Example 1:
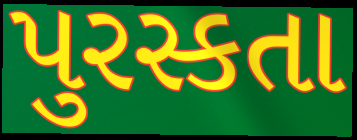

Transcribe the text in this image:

પુરસ્કતા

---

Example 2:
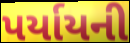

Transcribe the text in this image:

પર્યાયની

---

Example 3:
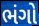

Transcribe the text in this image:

ભંગો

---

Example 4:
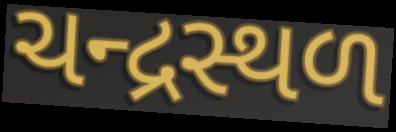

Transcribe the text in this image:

ચન્દ્રસ્થળ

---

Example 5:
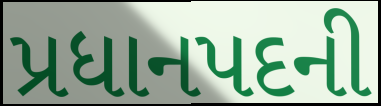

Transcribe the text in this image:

પ્રધાનપદની